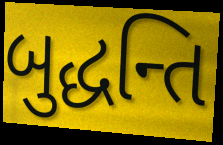
બુદ્ધન્તિ